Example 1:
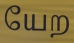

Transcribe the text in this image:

யேற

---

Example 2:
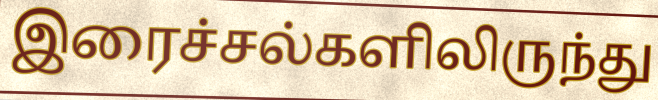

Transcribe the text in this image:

இரைச்சல்களிலிருந்து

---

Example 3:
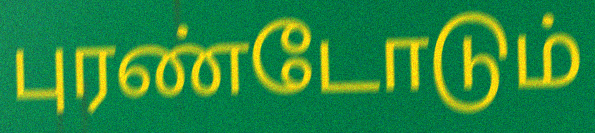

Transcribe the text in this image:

புரண்டோடும்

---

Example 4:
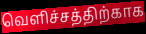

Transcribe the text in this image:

வெளிச்சத்திற்காக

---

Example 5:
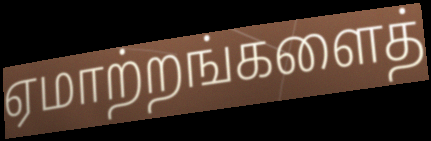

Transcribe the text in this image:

ஏமாற்றங்களைத்